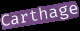
Carthage